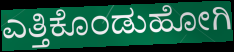
ಎತ್ತಿಕೊಂಡುಹೋಗಿ